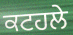
ਕਟਹਲੇ